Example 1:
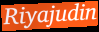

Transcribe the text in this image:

Riyajudin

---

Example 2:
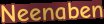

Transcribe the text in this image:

Neenaben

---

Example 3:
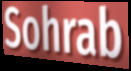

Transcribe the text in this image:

Sohrab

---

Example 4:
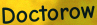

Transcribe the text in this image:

Doctorow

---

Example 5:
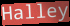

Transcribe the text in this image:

Halley